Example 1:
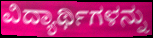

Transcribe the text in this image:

ವಿದ್ಯಾರ್ಥಿಗಳನ್ನು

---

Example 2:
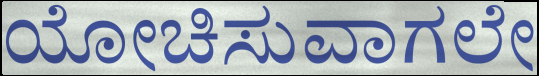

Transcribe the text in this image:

ಯೋಚಿಸುವಾಗಲೇ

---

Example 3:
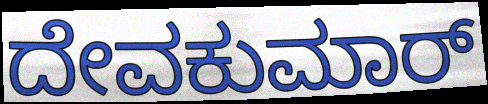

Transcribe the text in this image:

ದೇವಕುಮಾರ್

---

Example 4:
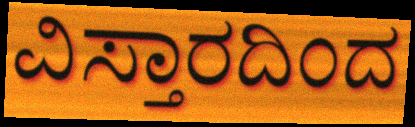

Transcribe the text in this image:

ವಿಸ್ತಾರದಿಂದ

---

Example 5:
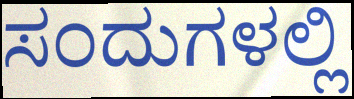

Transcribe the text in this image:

ಸಂದುಗಳಲ್ಲಿ